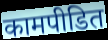
कामपीडित